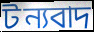
টন্যবাদ